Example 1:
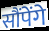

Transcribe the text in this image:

सौंपेंगे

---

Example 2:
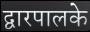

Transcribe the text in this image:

द्वारपालके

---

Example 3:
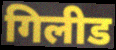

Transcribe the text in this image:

गिलीड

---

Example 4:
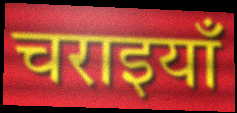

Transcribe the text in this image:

चराइयाँ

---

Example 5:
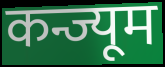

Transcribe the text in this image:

कन्ज्यूम